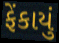
ફેંકાયું